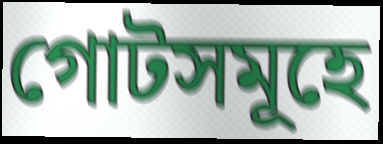
গোটসমূহে